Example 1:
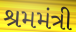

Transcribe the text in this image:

શ્રમમંત્રી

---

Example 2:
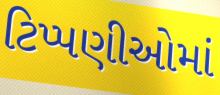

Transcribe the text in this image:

ટિપ્પણીઓમાં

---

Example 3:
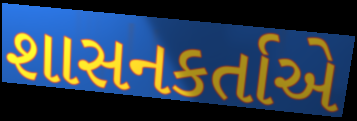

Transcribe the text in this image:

શાસનકર્તાએ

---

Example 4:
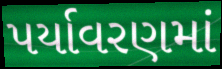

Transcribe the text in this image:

પર્યાવરણમાં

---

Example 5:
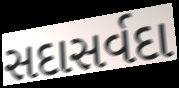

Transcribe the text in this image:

સદાસર્વદા